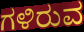
ಗಳಿರುವ